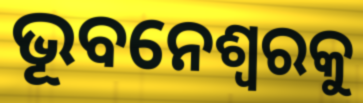
ଭୂବନେଶ୍ୱରକୁ